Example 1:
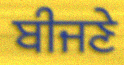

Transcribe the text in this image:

ਬੀਜਣੇ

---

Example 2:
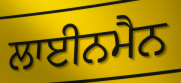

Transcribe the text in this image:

ਲਾਈਨਮੈਨ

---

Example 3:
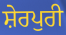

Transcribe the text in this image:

ਸ਼ੇਰਪੁਰੀ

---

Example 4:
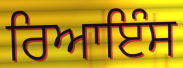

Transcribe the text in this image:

ਰਿਆਇੰਸ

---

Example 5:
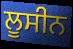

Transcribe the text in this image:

ਲੂਸੀਨ